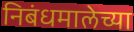
निबंधमालेच्या